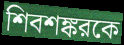
শিবশঙ্করকে